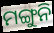
ମଙ୍ଗୁନି